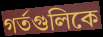
গর্তগুলিকে